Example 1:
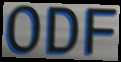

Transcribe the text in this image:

ODF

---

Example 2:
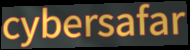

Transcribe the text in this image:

cybersafar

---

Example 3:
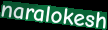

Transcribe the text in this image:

naralokesh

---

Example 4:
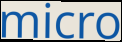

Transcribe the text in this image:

micro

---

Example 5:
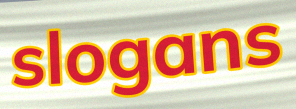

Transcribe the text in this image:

slogans